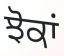
ਝੋਕਾਂ